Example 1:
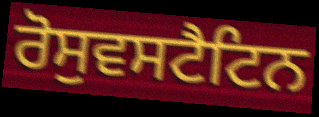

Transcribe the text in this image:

ਰੋਸੁਵਸਟੈਟਿਨ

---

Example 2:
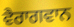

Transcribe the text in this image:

ਵੈਰਾਗਵਾਨ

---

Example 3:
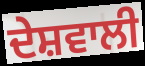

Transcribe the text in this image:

ਦੇਸ਼ਵਾਲੀ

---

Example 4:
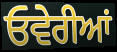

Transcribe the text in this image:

ਓਵੇਰੀਆਂ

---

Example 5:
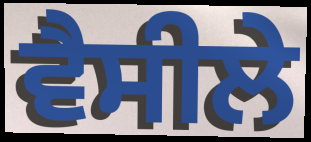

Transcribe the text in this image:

ਵੈਸੀਲੇ